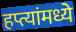
हप्त्यांमध्ये